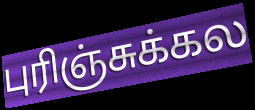
புரிஞ்சுக்கல